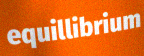
equillibrium